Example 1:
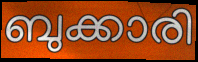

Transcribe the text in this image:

ബുക്കാരി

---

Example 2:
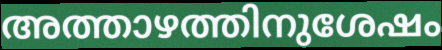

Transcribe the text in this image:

അത്താഴത്തിനുശേഷം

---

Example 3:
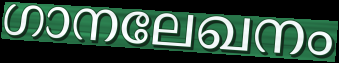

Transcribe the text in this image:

ഗാനലേഖനം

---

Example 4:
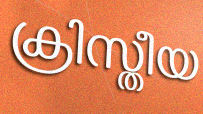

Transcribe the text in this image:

ക്രിസ്തീയ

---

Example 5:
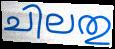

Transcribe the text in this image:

ചിലതു